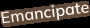
Emancipate